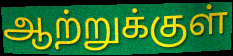
ஆற்றுக்குள்